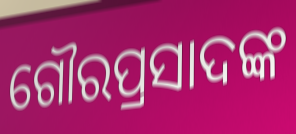
ଗୌରପ୍ରସାଦଙ୍କ